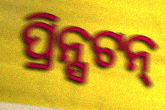
ପ୍ରିନ୍ସଟନ୍